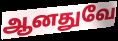
ஆனதுவே